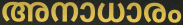
അനാധാരം